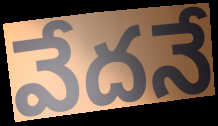
వేదనే